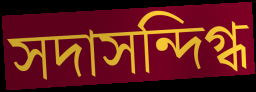
সদাসন্দিগ্ধ